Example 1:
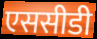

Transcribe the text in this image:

एससीडी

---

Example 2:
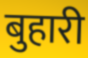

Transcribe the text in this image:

बुहारी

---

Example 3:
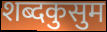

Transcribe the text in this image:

शब्दकुसुम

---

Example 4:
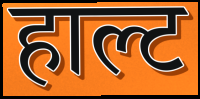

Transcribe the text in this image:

हाल्ट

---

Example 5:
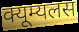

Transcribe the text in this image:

क्यूम्यलस